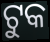
ଟୁକ